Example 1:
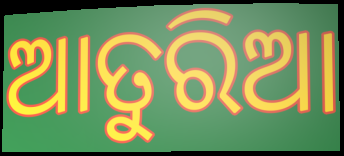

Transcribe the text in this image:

ଆତୁରିଆ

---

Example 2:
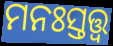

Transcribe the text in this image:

ମନଃସ୍ତତ୍ତ୍ଵ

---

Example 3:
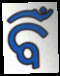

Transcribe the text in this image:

ବିଁ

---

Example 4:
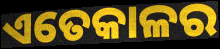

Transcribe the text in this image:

ଏତେକାଳର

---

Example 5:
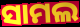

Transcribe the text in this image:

ସାମଲ